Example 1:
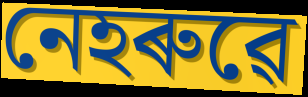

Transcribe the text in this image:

নেহৰুৱে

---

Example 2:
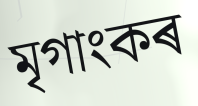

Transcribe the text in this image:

মৃগাংকৰ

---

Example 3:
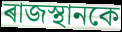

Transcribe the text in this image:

ৰাজস্থানকে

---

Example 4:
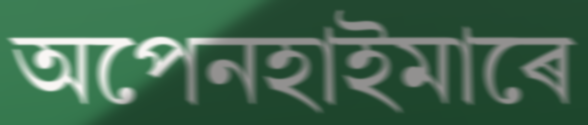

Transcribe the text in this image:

অপেনহাইমাৰে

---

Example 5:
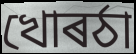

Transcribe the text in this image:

খোৰঠা